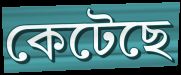
কেটেছে